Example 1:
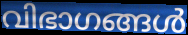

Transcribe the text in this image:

വിഭാഗങ്ങൾ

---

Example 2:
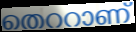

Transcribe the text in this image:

തെററാണ്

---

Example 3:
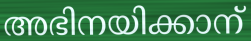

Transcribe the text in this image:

അഭിനയിക്കാന്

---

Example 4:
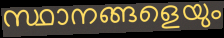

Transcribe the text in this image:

സ്ഥാനങ്ങളെയും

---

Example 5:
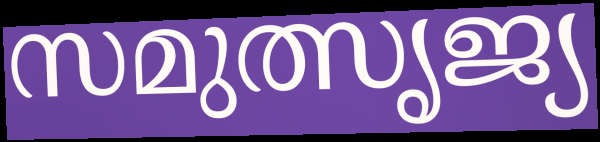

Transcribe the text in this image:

സമുത്സൃജ്യ